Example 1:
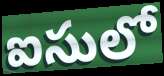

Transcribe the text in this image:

ఐసులో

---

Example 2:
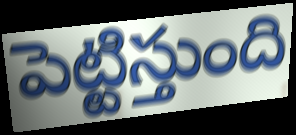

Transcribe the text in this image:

పెట్టిస్తుంది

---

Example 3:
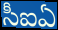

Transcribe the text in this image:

సీఐఏ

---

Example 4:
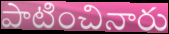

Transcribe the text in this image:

పాటించినారు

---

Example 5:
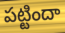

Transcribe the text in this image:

పట్టిందా